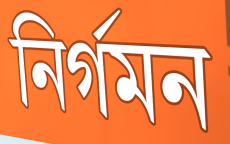
নির্গমন